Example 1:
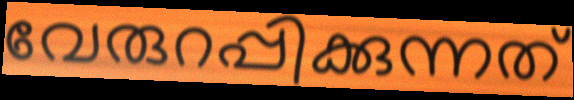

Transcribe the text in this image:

വേരുറപ്പിക്കുന്നത്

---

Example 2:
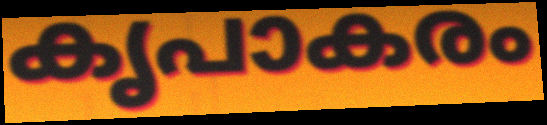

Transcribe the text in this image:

കൃപാകരം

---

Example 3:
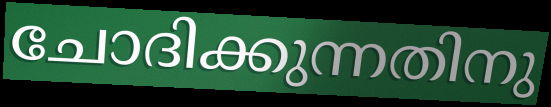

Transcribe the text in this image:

ചോദിക്കുന്നതിനു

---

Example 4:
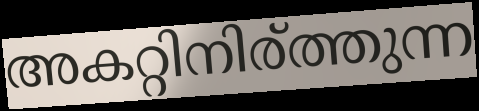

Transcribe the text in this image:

അകറ്റിനിര്ത്തുന്ന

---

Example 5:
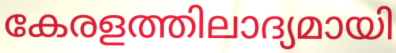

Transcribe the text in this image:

കേരളത്തിലാദ്യമായി